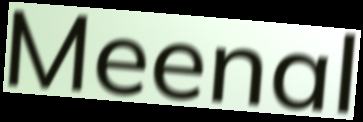
Meenal